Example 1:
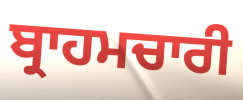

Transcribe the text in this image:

ਬ੍ਰਾਹਮਚਾਰੀ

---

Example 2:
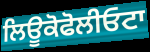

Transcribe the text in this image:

ਲਿਊਕੋਫੋਲੀਓਟਾ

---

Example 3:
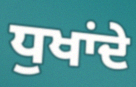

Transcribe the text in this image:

ਧੁਖਾਂਦੇ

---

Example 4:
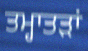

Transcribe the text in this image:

ਤਮ੍ਹਾਤੜਾਂ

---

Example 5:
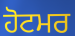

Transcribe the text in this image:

ਹੋਟਮਰ